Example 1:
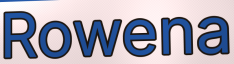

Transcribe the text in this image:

Rowena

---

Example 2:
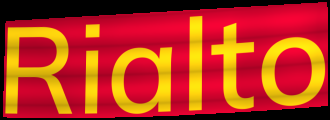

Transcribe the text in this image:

Rialto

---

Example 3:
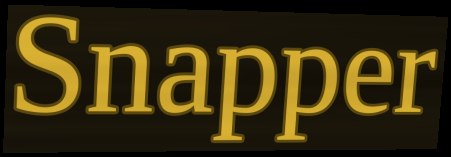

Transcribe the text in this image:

Snapper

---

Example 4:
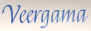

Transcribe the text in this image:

Veergama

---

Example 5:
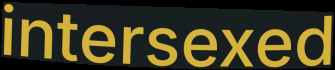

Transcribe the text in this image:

intersexed